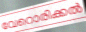
വേറൊരിക്കൽ